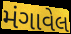
મંગાવેલ